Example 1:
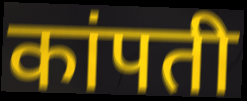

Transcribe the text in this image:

कांपती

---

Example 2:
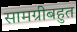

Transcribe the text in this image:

सामग्रीबहुत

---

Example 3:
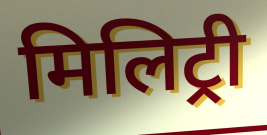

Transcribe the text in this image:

मिलिट्री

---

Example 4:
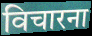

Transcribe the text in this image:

विचारना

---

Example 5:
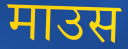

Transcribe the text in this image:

माउस